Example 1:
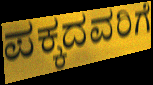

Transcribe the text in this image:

ಪಕ್ಕದವರಿಗೆ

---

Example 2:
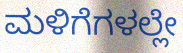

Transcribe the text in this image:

ಮಳಿಗೆಗಳಲ್ಲೇ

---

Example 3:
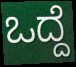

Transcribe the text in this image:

ಒದ್ದೆ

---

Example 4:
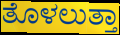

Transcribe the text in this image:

ತೊಳಲುತ್ತಾ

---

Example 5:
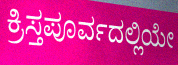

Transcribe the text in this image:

ಕ್ರಿಸ್ತಪೂರ್ವದಲ್ಲಿಯೇ